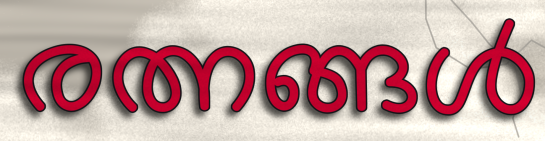
രത്നങ്ങൾ